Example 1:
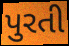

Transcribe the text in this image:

પુરતી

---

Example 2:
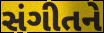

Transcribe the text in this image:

સંગીતને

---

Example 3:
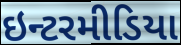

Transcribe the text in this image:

ઇન્ટરમીડિયા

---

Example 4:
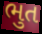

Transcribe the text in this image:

ભુત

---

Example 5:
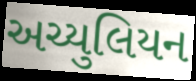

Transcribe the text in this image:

અચ્યુલિયન